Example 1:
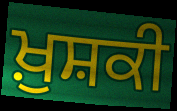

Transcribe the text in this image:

ਖ਼ੁਸ਼ਕੀ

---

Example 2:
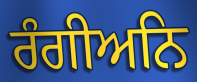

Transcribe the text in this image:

ਰੰਗੀਅਨਿ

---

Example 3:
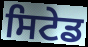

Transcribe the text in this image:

ਸਿਟੇਡ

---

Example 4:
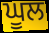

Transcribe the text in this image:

ਘੂਲ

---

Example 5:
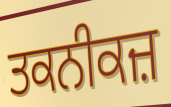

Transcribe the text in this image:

ਤਕਨੀਕਜ਼